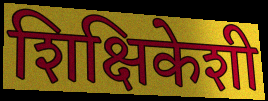
शिक्षिकेशी